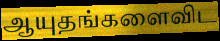
ஆயுதங்களைவிட